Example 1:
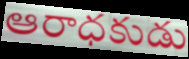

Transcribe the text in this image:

ఆరాధకుడు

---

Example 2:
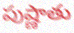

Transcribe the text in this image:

పుష్ణాతు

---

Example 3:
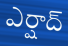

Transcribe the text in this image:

ఎర్షాద్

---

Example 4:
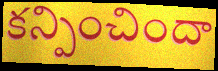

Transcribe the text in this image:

కన్పించిందా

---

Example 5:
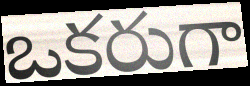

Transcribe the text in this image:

ఒకరుగా